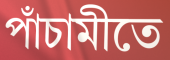
পাঁচামীতে